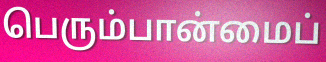
பெரும்பான்மைப்